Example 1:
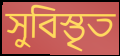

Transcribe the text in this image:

সুবিস্তৃত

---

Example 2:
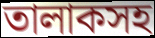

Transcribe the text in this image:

তালাকসহ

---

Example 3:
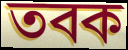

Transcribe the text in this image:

তবক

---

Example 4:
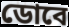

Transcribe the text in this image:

ডোবে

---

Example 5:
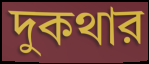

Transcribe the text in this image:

দুকথার